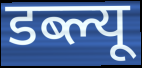
डब्ल्यू